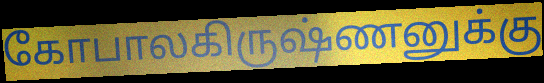
கோபாலகிருஷ்ணனுக்கு